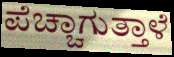
ಪೆಚ್ಚಾಗುತ್ತಾಳೆ